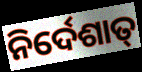
ନିର୍ଦେଶାତ୍